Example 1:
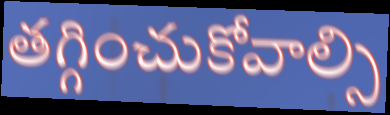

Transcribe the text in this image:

తగ్గించుకోవాల్సి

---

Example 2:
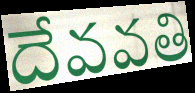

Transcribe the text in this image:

దేవవతి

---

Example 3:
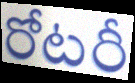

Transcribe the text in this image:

రోటరీ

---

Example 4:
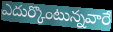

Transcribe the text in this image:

ఎదుర్కొంటున్నవారే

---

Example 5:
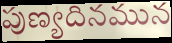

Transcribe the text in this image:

పుణ్యదినమున